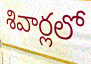
శివార్లలో